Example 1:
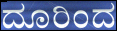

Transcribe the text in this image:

ದೂರಿಂದ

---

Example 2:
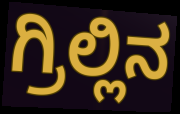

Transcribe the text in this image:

ಗ್ರಿಲ್ಲಿನ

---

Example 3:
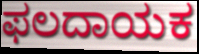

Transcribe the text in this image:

ಫಲದಾಯಕ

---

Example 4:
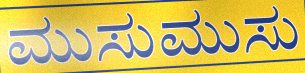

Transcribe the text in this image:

ಮುಸುಮುಸು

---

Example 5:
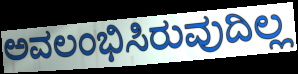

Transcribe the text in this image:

ಅವಲಂಭಿಸಿರುವುದಿಲ್ಲ